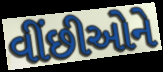
વીંછીઓને